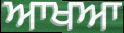
ਆਖਆ